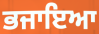
ਭਜਾਇਆ